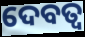
ଦେବତ୍ୱ